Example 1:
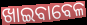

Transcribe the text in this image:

ଖାଇବାବେଳ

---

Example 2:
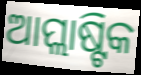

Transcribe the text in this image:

ଆପ୍ଲାଷ୍ଟିକ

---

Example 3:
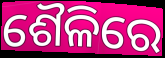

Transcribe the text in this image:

ଶୈଳିରେ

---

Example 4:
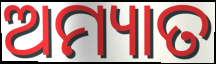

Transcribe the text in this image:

ଅମ୍ୟାତ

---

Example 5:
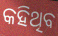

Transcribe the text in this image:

କହିଥିବ